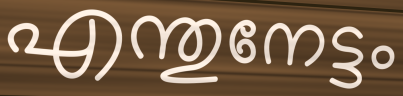
എന്തുനേട്ടം